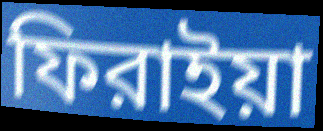
ফিরাইয়া